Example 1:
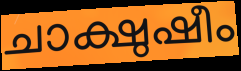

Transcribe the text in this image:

ചാക്ഷുഷീം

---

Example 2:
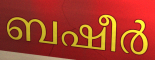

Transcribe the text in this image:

ബഷീർ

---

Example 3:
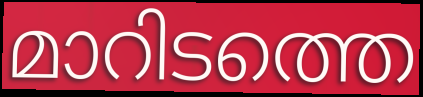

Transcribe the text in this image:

മാറിടത്തെ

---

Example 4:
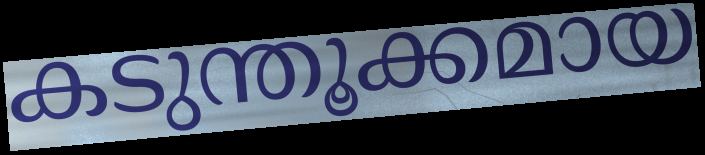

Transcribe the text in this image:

കടുന്തൂക്കമായ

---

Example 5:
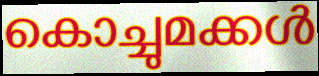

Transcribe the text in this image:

കൊച്ചുമക്കൾ